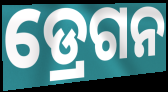
ଡ୍ରେଗନ